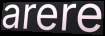
arere